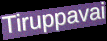
Tiruppavai